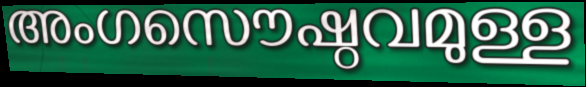
അംഗസൌഷ്ഠവമുള്ള